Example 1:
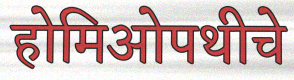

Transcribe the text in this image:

होमिओपथीचे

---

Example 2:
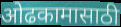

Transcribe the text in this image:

ओढकामासाठी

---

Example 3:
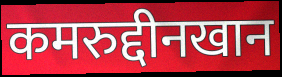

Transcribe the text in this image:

कमरुद्दीनखान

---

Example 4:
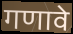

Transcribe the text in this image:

गणावे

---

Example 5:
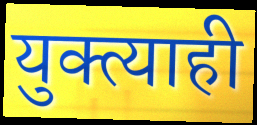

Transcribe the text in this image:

युक्त्याही